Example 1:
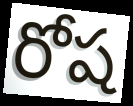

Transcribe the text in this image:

రోష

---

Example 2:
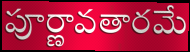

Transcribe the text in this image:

పూర్ణావతారమే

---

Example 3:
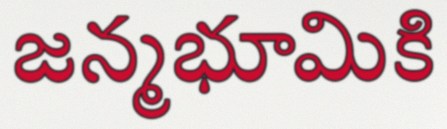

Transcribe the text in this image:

జన్మభూమికి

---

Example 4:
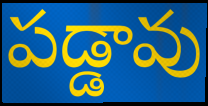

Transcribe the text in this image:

పడ్డావు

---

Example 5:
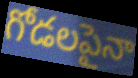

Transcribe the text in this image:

గోడలపైనా